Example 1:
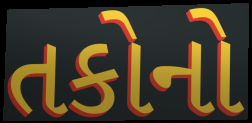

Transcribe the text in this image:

તકોનો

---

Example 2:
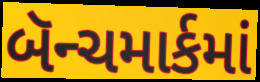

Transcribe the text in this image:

બૅન્ચમાર્કમાં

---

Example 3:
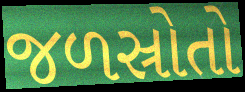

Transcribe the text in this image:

જળસ્રોતો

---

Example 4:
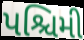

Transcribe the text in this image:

પશ્ચિમી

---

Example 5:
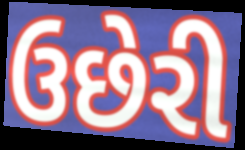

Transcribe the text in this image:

ઉછેરી